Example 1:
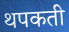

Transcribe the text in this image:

थपकती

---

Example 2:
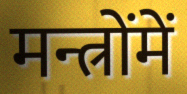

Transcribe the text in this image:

मन्त्रोंमें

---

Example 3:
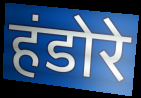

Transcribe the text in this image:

हंडोरे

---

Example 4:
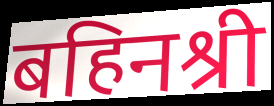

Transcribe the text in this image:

बहिनश्री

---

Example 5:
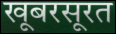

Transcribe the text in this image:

खूबरसूरत